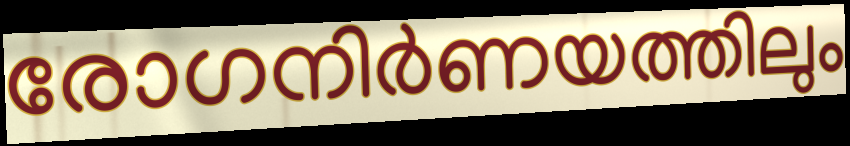
രോഗനിർണയത്തിലും